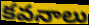
కవనాలు